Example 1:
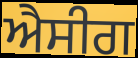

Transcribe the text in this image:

ਐਸੀਗ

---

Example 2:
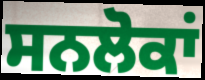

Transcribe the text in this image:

ਸਨਲੋਕਾਂ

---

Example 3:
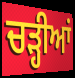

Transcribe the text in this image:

ਚੜ੍ਹੀਆਂ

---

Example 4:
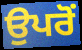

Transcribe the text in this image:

ਉਪਰੋਂ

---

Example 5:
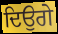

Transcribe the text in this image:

ਦਿਉਗੇ